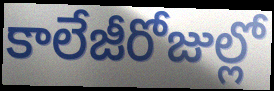
కాలేజీరోజుల్లో